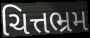
ચિત્તભ્રમ